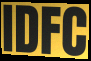
IDFC